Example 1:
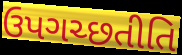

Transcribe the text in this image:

ઉપગચ્છતીતિ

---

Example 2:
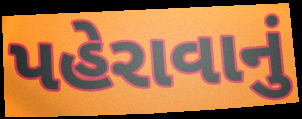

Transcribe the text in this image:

પહેરાવાનું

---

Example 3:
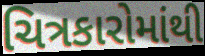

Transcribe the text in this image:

ચિત્રકારોમાંથી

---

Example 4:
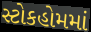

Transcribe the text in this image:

સ્ટોકહોમમાં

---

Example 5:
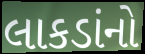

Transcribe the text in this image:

લાકડાંનો